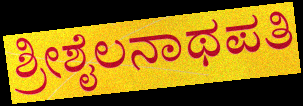
ಶ್ರೀಶೈಲನಾಥಪತಿ